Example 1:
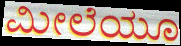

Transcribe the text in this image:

ಮೀಲೆಯೂ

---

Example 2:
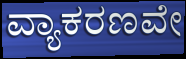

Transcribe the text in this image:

ವ್ಯಾಕರಣವೇ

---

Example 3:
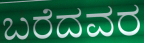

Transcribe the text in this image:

ಬರೆದವರ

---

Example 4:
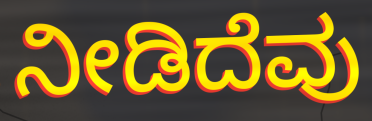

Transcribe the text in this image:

ನೀಡಿದೆವು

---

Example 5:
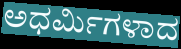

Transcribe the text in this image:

ಅಧರ್ಮಿಗಳಾದ